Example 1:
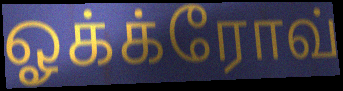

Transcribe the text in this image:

ஓக்க்ரோவ்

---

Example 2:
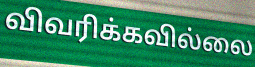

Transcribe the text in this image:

விவரிக்கவில்லை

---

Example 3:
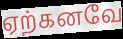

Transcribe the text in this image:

ஏற்கனவே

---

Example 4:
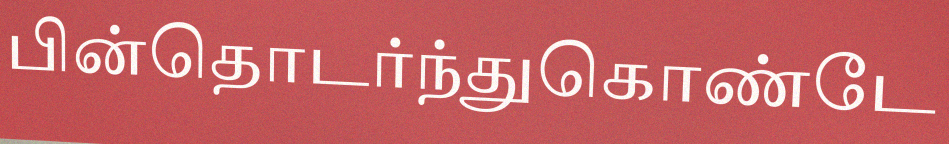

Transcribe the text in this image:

பின்தொடர்ந்துகொண்டே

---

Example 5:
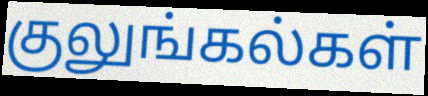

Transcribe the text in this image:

குலுங்கல்கள்